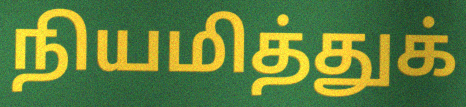
நியமித்துக்